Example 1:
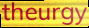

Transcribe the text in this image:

theurgy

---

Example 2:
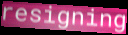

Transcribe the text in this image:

resigning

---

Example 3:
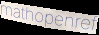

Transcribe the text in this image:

mathopenref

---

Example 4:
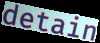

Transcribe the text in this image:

detain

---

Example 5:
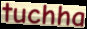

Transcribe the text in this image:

tuchha